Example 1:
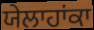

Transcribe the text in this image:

ਯੇਲਾਹਾਂਕਾ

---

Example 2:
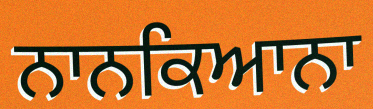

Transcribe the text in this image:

ਨਾਨਕਿਆਨਾ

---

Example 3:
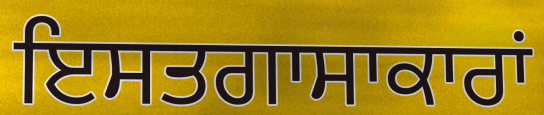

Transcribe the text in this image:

ਇਸਤਗਾਸਾਕਾਰਾਂ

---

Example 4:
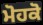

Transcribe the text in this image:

ਮੋਹਕੋ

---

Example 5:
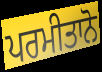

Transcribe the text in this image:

ਪਰਮੀਤਾਨੋ